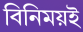
বিনিময়ই